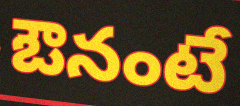
ఔనంటే